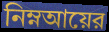
নিম্নআয়ের